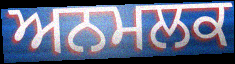
ਅਨਮਲਕ